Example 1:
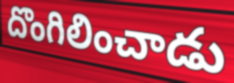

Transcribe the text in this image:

దొంగిలించాడు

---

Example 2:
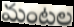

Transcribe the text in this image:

మంటల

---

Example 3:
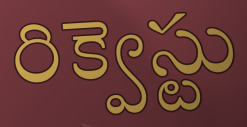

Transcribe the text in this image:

రిక్వెస్టు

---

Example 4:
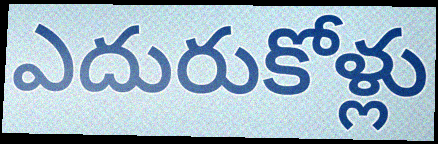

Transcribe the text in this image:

ఎదురుకోళ్లు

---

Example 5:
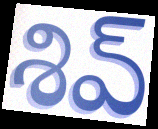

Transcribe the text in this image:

శివ్